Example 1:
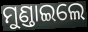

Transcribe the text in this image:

ମୁଣ୍ଡାଇଲେ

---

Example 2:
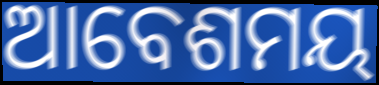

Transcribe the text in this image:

ଆବେଶମୟ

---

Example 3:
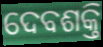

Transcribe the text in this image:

ଦେବଶକ୍ତି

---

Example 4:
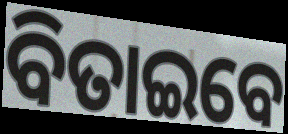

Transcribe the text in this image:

ବିତାଇବେ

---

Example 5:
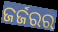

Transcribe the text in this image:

ଜର୍ଜରର